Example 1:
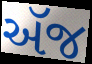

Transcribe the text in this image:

ઍજ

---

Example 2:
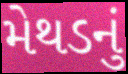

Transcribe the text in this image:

મેથડનું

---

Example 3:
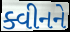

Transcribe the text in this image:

ક્વીનને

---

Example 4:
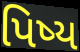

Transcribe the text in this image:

પિષ્ય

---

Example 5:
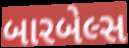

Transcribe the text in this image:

બારબેલ્સ